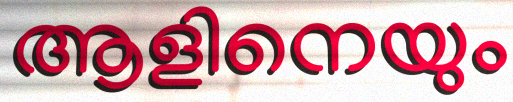
ആളിനെയും